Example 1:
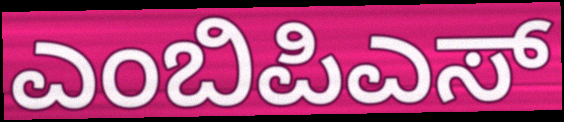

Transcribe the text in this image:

ಎಂಬಿಪಿಎಸ್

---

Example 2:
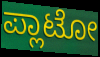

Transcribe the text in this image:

ಪ್ಲಾಟೋ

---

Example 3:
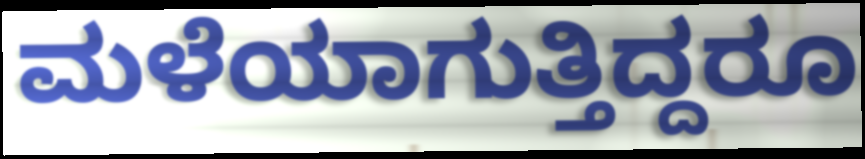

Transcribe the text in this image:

ಮಳೆಯಾಗುತ್ತಿದ್ದರೂ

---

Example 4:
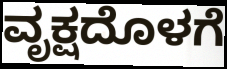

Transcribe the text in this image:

ವೃಕ್ಷದೊಳಗೆ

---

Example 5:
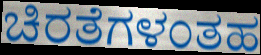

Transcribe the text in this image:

ಚಿರತೆಗಳಂತಹ